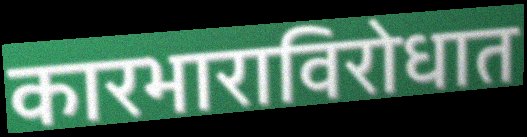
कारभाराविरोधात